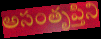
అసంతృప్తిని